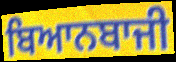
ਬਿਆਨਬਾਜੀ